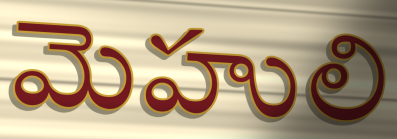
మెహులి